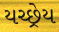
યચ્છ્રેય